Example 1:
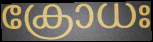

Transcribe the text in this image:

ക്രോധഃ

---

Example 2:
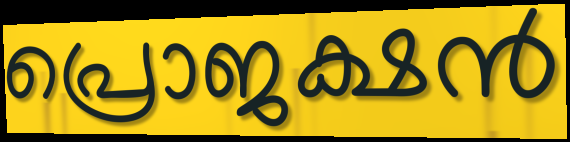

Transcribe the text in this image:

പ്രൊജക്ഷൻ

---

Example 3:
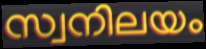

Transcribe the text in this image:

സ്വനിലയം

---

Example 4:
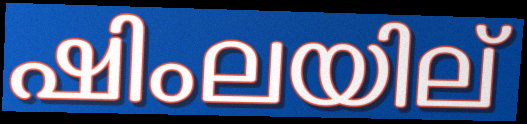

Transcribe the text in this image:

ഷിംലയില്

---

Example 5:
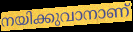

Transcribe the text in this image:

നയിക്കുവാനാണ്